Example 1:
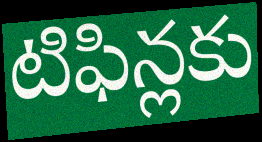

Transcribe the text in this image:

టిఫిన్లకు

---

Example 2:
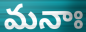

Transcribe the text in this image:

మనాః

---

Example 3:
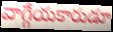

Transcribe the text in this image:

వాగ్గేయకారుడూ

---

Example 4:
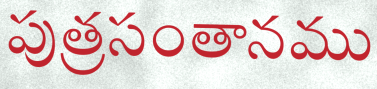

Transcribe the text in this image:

పుత్రసంతానము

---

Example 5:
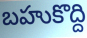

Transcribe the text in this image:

బహుకొద్ది